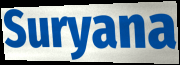
Suryana